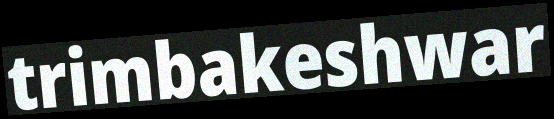
trimbakeshwar